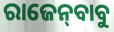
ରାଜେନ୍‌ବାବୁ